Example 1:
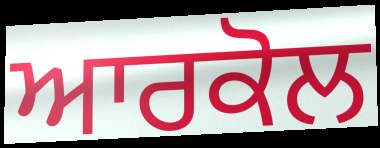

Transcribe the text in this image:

ਆਰਕੋਲ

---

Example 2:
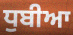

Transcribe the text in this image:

ਧੁਬੀਆ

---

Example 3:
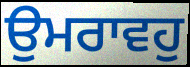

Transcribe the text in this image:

ਉਮਰਾਵਹੁ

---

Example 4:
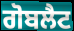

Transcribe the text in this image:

ਗੋਬਲੈਟ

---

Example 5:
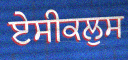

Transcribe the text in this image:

ਏਸੀਕਲੁਸ